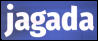
jagada